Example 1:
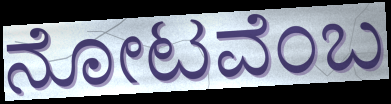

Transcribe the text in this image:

ನೋಟವೆಂಬ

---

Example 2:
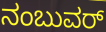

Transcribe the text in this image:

ನಂಬುವರ್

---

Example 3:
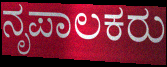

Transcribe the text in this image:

ನೃಪಾಲಕರು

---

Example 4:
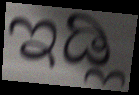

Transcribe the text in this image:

ಇಡ್ಲಿ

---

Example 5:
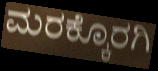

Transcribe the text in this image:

ಮರಕ್ಕೊರಗಿ